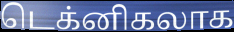
டெக்னிகலாக